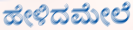
ಹೇಳಿದಮೇಲೆ